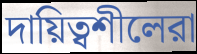
দায়িত্বশীলেরা